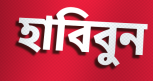
হাবিবুন